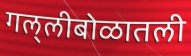
गल्लीबोळातली